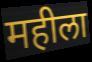
महीला